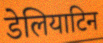
डेलियाटिन